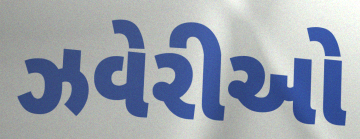
ઝવેરીઓ